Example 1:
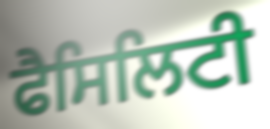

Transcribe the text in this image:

ਫੈਸਿਲਿਟੀ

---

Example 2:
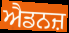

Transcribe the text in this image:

ਐਡਨਜ਼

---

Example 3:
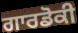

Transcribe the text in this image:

ਗਾਰਡੋਕੀ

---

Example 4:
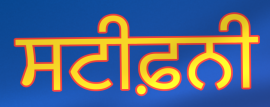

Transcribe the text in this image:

ਸਟੀਫ਼ਨੀ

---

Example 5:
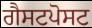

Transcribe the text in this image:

ਗੈਸਟਪੋਸਟ